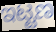
ಇಟ್ಟಣ